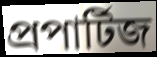
প্রপার্টিজ